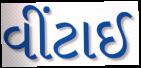
વીંટાઈ